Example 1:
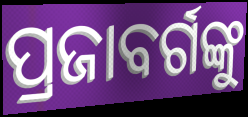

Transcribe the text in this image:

ପ୍ରଜାବର୍ଗଙ୍କୁ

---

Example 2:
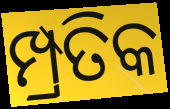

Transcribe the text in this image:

ମ୍ପ୍ରତିକ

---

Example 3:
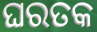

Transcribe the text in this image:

ଘରତକ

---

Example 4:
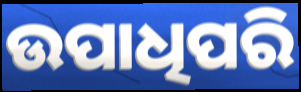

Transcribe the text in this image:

ଉପାଧିପରି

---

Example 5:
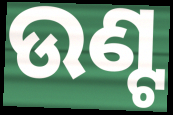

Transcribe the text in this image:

ଉଣ୍ଟ